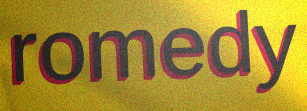
romedy